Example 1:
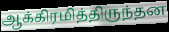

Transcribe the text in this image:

ஆக்கிரமித்திருந்தன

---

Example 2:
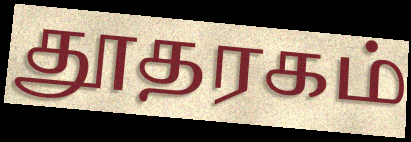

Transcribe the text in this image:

தூதரகம்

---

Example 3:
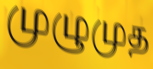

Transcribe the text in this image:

முழுமுத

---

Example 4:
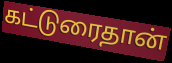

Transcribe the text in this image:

கட்டுரைதான்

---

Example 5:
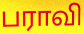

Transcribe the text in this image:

பராவி